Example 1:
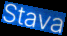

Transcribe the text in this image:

Stava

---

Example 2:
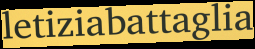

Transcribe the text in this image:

letiziabattaglia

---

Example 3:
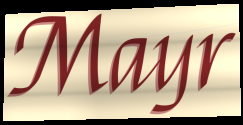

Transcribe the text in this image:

Mayr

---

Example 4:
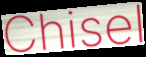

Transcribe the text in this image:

Chisel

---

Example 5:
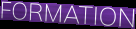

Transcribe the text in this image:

FORMATION